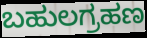
ಬಹುಲಗ್ರಹಣ